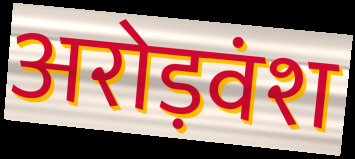
अरोड़वंश